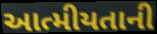
આત્મીયતાની